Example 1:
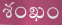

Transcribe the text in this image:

శంఖం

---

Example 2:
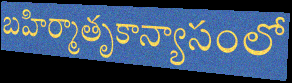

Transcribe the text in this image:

బహిర్మాతృకాన్యాసంలో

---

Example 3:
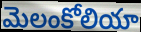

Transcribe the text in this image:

మెలంకోలియా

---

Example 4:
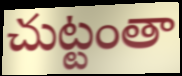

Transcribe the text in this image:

చుట్టంతా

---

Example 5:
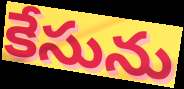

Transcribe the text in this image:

కేసును